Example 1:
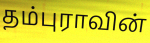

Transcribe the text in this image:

தம்புராவின்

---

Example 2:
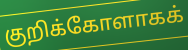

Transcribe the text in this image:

குறிக்கோளாகக்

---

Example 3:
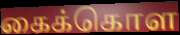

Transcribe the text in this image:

கைக்கொள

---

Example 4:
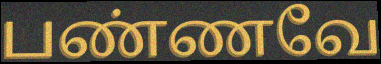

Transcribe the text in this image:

பண்ணவே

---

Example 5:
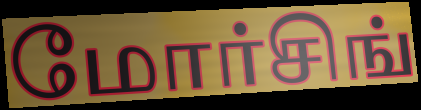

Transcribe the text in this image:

மோர்சிங்